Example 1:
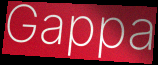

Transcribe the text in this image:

Gappa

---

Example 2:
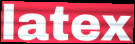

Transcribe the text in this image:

latex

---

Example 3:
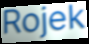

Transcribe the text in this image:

Rojek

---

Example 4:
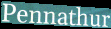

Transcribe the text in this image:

Pennathur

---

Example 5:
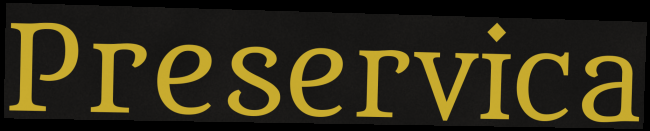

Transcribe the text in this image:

Preservica